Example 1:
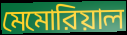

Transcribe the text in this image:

মেমোরিয়াল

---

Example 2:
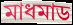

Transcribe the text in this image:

মাধমাড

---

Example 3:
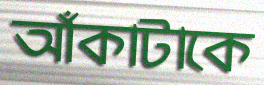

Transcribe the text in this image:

আঁকাটাকে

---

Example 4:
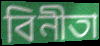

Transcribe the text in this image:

বিনীতা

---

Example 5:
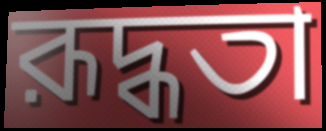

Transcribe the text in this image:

রূদ্ধতা